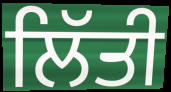
ਲਿੱਤੀ